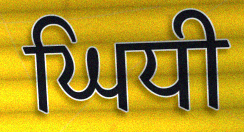
ਘਿਧੀ